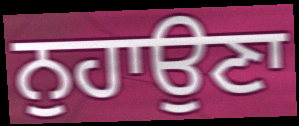
ਨੁਹਾਉਣਾ